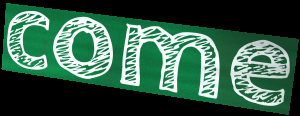
come